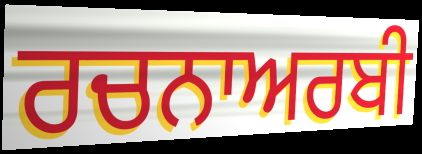
ਰਚਨਾਅਰਬੀ